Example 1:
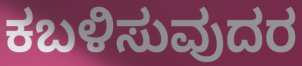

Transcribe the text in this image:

ಕಬಳಿಸುವುದರ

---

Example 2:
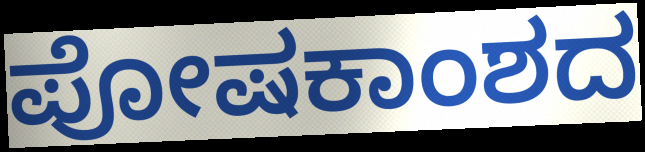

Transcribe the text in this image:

ಪೋಷಕಾಂಶದ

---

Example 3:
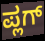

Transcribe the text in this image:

ಪ್ಲಗ್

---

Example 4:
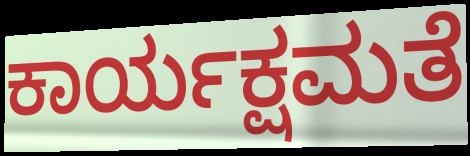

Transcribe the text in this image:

ಕಾರ್ಯಕ್ಷಮತೆ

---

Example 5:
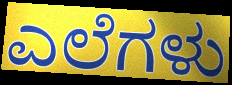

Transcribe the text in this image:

ಎಲೆಗಳು